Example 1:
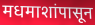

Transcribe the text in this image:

मधमाशांपासून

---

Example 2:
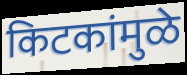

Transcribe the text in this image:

किटकांमुळे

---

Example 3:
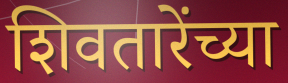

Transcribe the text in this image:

शिवतारेंच्या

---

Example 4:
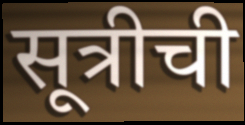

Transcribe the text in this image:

सूत्रीची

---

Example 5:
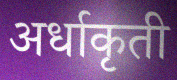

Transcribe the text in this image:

अर्धाकृती